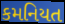
કમનિયત